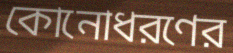
কোনোধরণের